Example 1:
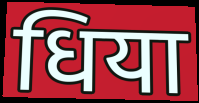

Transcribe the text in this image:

धिया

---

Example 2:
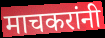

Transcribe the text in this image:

माचकरांनी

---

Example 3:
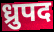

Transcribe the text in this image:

ध्रुपद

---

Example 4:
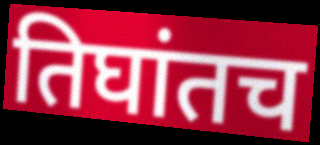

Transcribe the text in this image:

तिघांतच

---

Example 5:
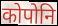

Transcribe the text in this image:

कोपोनि